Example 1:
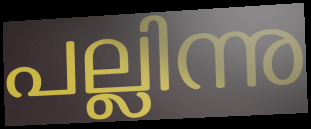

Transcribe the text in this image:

പല്ലിന്നു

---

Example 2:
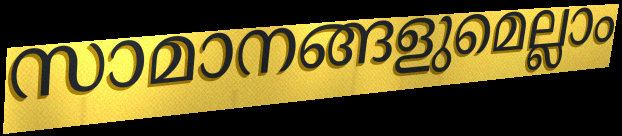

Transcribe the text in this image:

സാമാനങ്ങളുമെല്ലാം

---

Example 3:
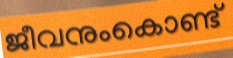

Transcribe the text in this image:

ജീവനുംകൊണ്ട്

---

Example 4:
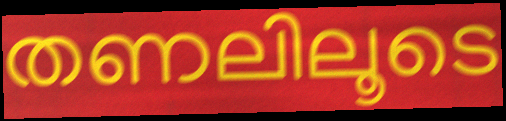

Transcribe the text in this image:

തണലിലൂടെ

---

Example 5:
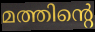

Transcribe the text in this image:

മത്തിന്റെ